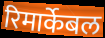
रिमार्केबल